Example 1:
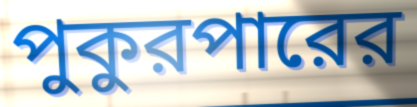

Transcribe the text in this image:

পুকুরপারের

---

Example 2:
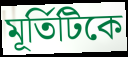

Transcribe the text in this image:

মূর্তিটিকে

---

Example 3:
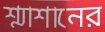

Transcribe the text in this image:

শ্মাশানের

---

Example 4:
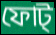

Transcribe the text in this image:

ফোট্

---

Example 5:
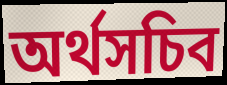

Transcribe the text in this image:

অর্থসচিব